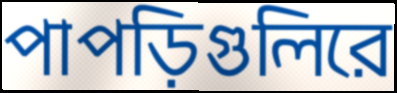
পাপড়িগুলিরে